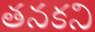
తనకని